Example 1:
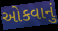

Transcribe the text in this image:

ઓકવાનું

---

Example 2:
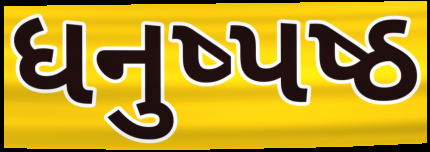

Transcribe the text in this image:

ધનુષ્પષ્ઠ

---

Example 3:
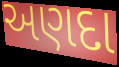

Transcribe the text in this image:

અણદા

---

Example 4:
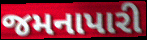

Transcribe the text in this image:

જમનાપારી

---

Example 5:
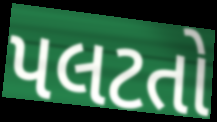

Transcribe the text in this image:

પલટતો